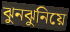
ঝুনঝুনিয়ে